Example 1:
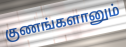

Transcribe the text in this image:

குணங்களானும்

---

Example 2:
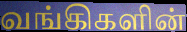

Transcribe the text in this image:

வங்கிகளின்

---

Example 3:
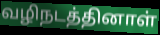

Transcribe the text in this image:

வழிநடத்தினாள்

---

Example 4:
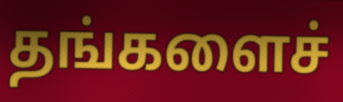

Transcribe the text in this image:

தங்களைச்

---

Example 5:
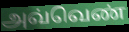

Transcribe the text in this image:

அவ்வெண்